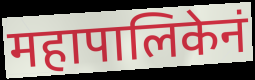
महापालिकेनं